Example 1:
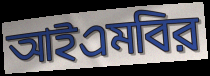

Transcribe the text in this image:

আইএমবির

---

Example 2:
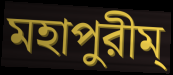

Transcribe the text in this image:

মহাপুরীম্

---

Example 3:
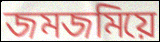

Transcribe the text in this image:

জমজমিয়ে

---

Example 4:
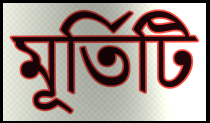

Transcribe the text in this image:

মূর্তিটি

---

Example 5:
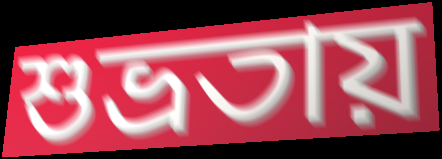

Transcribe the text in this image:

শুভ্রতায়